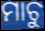
ମାଚୁ